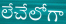
లేచేలోగా